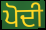
ਪੋਦੀ